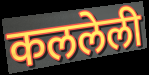
कललेली